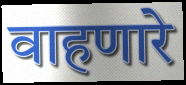
वाहणारे